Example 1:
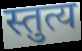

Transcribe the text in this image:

स्तुत्य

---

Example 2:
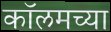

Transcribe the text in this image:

कॉलमच्या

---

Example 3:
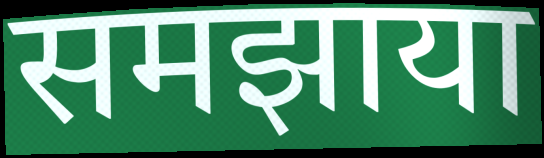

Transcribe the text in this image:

समझाया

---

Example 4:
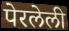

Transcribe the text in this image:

पेरलेली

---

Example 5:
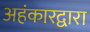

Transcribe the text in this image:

अहंकारद्वारा